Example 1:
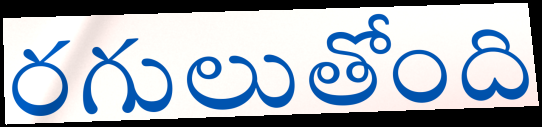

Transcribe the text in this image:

రగులుతోంది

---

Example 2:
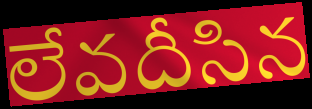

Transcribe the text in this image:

లేవదీసిన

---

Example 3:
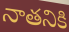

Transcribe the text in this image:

నాతనికి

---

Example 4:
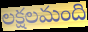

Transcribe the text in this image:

లక్షలమంది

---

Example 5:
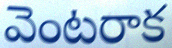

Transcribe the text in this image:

వెంటరాక